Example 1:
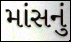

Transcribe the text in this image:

માંસનું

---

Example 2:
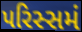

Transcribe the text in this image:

પરિસ્સમં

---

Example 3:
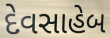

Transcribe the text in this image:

દેવસાહેબ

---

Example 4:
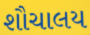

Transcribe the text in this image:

શૌચાલય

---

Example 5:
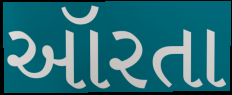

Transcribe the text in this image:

ઑરતા